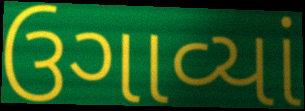
ઉગાવ્યાં